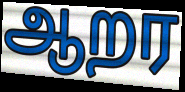
ஆறர